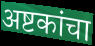
अष्टकांचा